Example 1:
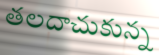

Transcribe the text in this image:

తలదాచుకున్న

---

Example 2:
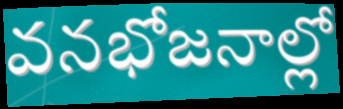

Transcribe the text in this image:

వనభోజనాల్లో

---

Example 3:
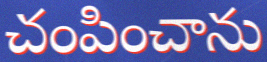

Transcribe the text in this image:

చంపించాను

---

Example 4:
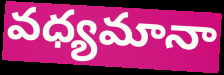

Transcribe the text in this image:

వధ్యమానా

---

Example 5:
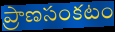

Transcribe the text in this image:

ప్రాణసంకటం